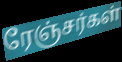
ரேஞ்சர்கள்